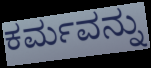
ಕರ್ಮವನ್ನು